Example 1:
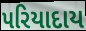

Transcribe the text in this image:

પરિયાદાય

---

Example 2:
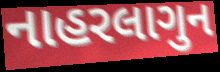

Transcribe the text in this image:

નાહરલાગુન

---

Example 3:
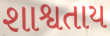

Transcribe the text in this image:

શાશ્વતાય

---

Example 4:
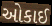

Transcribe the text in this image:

ઓકાઈ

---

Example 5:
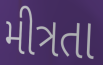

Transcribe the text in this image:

મીત્રતા